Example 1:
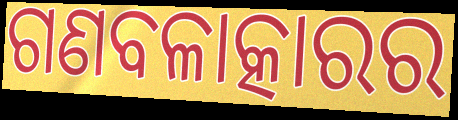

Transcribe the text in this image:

ଗଣବଳାତ୍କାରର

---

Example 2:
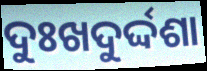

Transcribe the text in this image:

ଦୁଃଖଦୁର୍ଦ୍ଦଶା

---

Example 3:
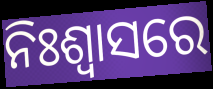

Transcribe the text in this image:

ନିଃଶ୍ଵାସରେ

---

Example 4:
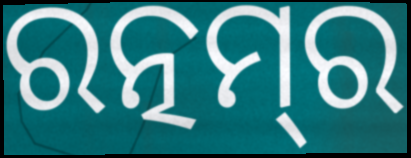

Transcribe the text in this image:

ରତ୍ନମ୍‌ର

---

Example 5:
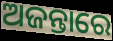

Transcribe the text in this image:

ଅଜନ୍ତାରେ